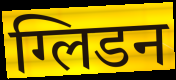
ग्लिडन